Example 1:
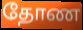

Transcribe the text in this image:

தோண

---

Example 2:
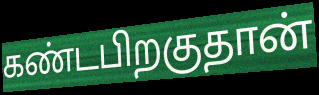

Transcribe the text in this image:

கண்டபிறகுதான்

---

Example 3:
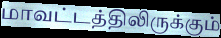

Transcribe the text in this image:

மாவட்டத்திலிருக்கும்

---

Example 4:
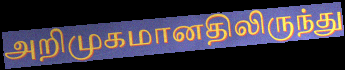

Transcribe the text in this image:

அறிமுகமானதிலிருந்து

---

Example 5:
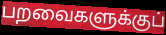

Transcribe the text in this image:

பறவைகளுக்குப்